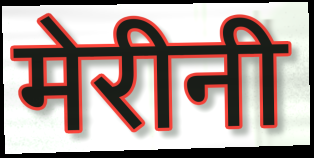
मेरीनी